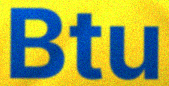
Btu